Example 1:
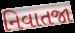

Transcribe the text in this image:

નિવાતજા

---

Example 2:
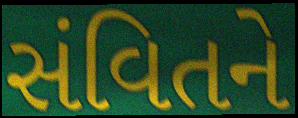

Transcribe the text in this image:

સંવિતને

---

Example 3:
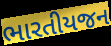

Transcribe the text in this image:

ભારતીયજન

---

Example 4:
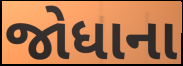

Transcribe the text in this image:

જોધાના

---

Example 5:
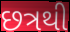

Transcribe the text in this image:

છત્રથી